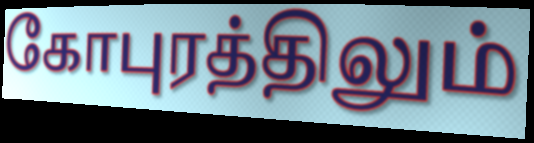
கோபுரத்திலும்